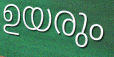
ഉയരും